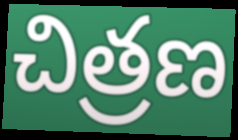
చిత్రణ